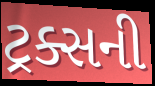
ટ્રક્સની